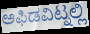
ಅಫಿಡವಿಟ್ನಲ್ಲಿ